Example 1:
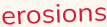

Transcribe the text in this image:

erosions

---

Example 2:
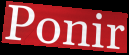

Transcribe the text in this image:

Ponir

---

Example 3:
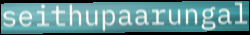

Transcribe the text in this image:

seithupaarungal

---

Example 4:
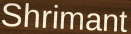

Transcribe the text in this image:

Shrimant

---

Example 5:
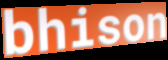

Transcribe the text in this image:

bhison